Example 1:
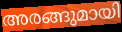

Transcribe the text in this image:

അരങ്ങുമായി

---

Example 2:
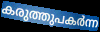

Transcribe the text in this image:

കരുത്തുപകർന്ന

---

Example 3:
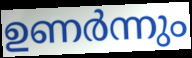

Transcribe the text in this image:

ഉണർന്നും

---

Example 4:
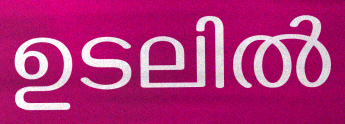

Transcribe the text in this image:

ഉടലിൽ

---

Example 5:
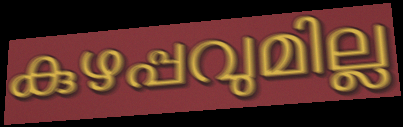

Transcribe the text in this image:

കുഴപ്പവുമില്ല